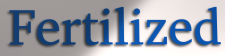
Fertilized